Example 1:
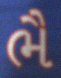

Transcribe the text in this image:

ભૈ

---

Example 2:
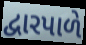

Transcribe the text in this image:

દ્વારપાળે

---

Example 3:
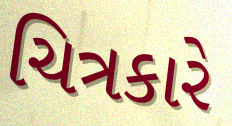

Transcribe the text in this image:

ચિત્રકારે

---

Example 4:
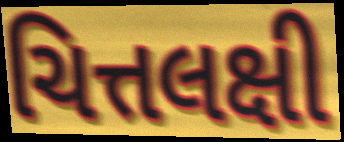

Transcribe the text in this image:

ચિત્તલક્ષી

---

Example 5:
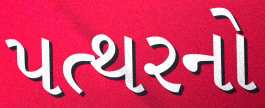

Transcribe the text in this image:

પત્થરનો